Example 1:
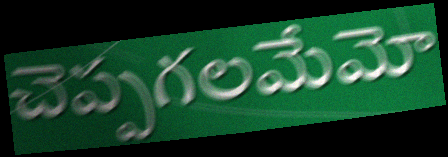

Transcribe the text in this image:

చెప్పగలమేమో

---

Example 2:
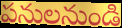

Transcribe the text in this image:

పనులనుండి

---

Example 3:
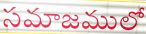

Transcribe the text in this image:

సమాజములో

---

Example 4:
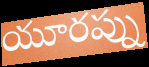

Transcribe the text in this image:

యూరప్ను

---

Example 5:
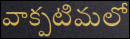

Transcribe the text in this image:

వాక్పటిమలో